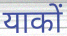
याकों